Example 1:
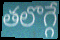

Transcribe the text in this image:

తలొగ్గే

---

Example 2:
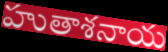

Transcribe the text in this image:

హుతాశనాయ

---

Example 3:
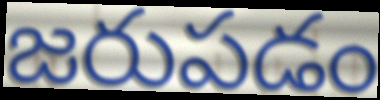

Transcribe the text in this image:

జరుపడం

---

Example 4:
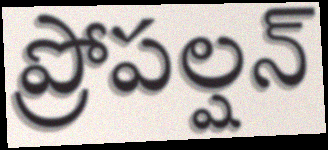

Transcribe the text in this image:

ప్రోపల్షన్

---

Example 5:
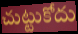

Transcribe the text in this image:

చుట్టుకోదు